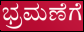
ಭ್ರಮಣೆಗೆ